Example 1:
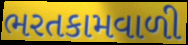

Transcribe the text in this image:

ભરતકામવાળી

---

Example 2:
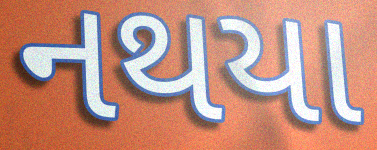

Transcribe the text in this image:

નથયા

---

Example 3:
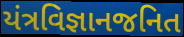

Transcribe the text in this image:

યંત્રવિજ્ઞાનજનિત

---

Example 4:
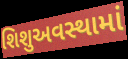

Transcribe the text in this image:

શિશુઅવસ્થામાં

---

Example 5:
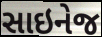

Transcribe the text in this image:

સાઇનેજ